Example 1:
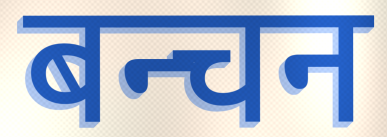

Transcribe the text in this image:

बन्चन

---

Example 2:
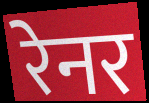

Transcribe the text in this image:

रेनर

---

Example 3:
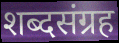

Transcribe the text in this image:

शब्दसंग्रह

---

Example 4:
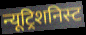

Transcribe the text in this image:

न्‍यूट्रिशनिस्‍ट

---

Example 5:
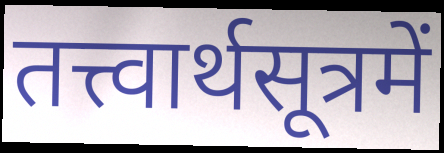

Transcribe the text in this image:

तत्त्वार्थसूत्रमें